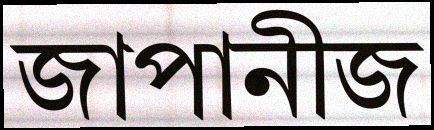
জাপানীজ